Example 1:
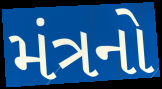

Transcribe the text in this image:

મંત્રનો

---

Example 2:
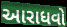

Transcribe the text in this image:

આરાધવો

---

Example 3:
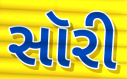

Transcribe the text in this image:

સૉરી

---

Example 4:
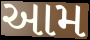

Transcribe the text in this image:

આમ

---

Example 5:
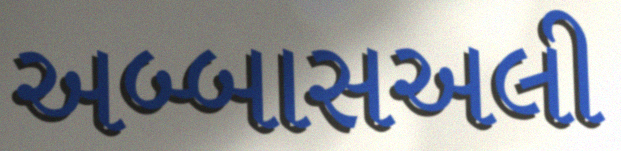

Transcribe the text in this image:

અબ્બાસઅલી